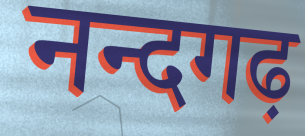
नन्दगढ़